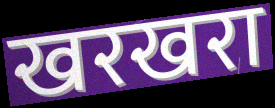
खरखरा